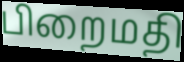
பிறைமதி